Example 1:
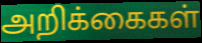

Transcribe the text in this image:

அறிக்கைகள்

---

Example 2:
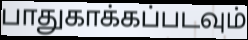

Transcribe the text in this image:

பாதுகாக்கப்படவும்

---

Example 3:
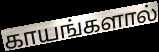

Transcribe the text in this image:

காயங்களால்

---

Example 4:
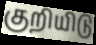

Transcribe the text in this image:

குறியிடு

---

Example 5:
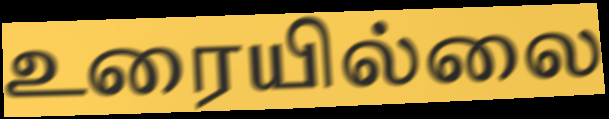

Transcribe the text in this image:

உரையில்லை